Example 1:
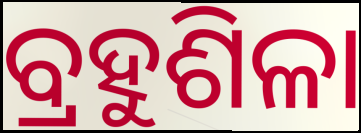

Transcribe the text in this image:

ବ୍ରହୁଶିଳା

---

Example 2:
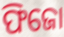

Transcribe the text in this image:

ଫିଜୋ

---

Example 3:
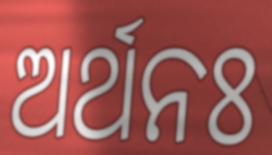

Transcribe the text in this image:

ଅର୍ଥନଃ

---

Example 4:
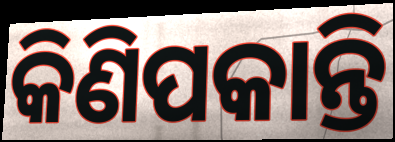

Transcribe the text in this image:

କିଣିପକାନ୍ତି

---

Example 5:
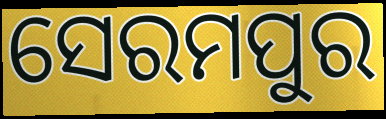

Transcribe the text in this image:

ସେରମପୁର